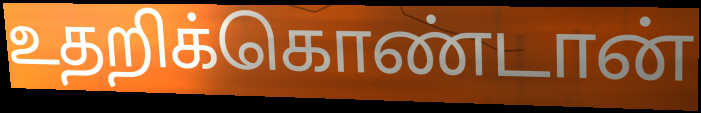
உதறிக்கொண்டான்